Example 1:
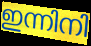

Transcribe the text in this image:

ഇന്നിനി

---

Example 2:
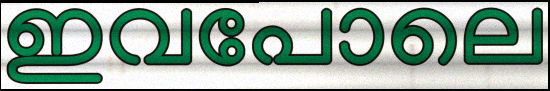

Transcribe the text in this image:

ഇവപോലെ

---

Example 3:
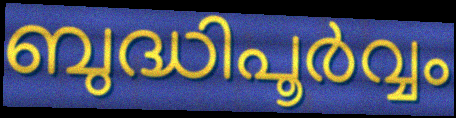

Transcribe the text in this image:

ബുദ്ധിപൂർവ്വം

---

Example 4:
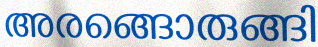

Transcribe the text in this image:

അരങ്ങൊരുങ്ങി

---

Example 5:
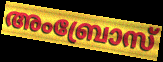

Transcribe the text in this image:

അംബ്രോസ്